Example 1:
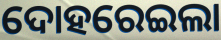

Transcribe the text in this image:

ଦୋହରେଇଲା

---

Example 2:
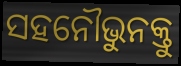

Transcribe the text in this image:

ସହନୌଭୁନକ୍ତୁ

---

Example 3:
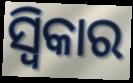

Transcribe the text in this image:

ସ୍ୱିକାର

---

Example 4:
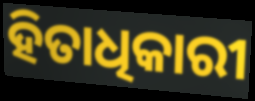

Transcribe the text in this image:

ହିତାଧିକାରୀ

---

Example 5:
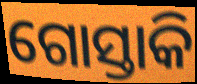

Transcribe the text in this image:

ଗୋସ୍ତାକି